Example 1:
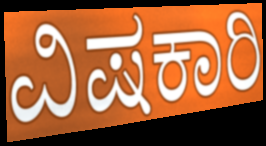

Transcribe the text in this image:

ವಿಷಕಾರಿ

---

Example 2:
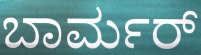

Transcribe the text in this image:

ಬಾರ್ಮರ್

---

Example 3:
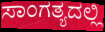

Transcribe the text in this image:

ಸಾಂಗತ್ಯದಲ್ಲಿ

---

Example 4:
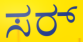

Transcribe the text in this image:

ಸರ‍್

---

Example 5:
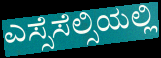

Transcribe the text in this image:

ಎಸ್ಸೆಸೆಲ್ಸಿಯಲ್ಲಿ